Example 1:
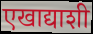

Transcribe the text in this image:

एखाद्याशी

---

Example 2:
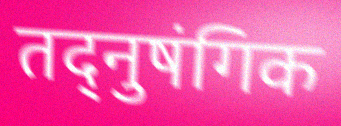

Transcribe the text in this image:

तद्नुषंगिक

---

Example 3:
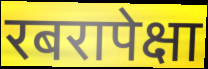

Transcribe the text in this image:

रबरापेक्षा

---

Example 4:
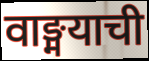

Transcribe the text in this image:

वाङ्मयाची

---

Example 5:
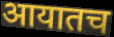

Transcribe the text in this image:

आयातच